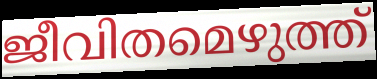
ജീവിതമെഴുത്ത്